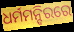
ଧର୍ମମନ୍ଦିରରେ